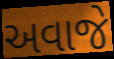
અવાજે